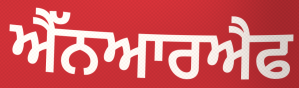
ਐੱਨਆਰਐਫ